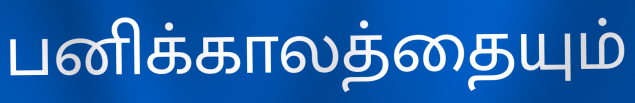
பனிக்காலத்தையும்